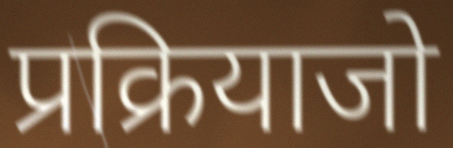
प्रक्रियाजो